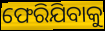
ଫେରିଯିବାକୁ